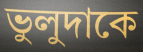
ভুলুদাকে